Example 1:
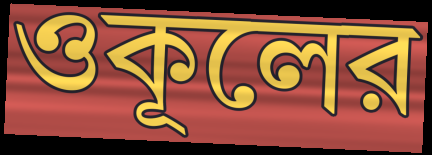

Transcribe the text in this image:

ওকূলের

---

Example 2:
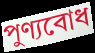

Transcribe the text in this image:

পুণ্যবোধ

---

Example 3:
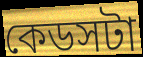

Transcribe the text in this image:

কেডসটা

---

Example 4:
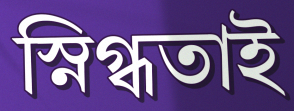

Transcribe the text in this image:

স্নিগ্ধতাই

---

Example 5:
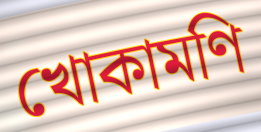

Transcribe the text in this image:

খোকামণি